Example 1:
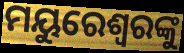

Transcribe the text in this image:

ମୟୁରେଶ୍ବରଙ୍କୁ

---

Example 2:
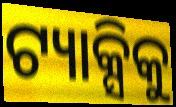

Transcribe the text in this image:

ଟ୍ୟାକ୍ସିକୁ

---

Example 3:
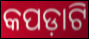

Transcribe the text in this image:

କପଡ଼ାଟି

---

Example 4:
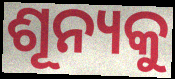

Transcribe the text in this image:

ଶୂନ୍ୟକୁ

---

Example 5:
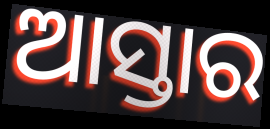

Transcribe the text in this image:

ଆସ୍ତାର